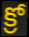
క్రో